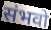
संभवो